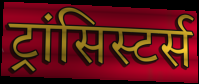
ट्रांसिस्टर्स